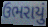
ઉભરાયું